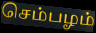
செம்பழம்